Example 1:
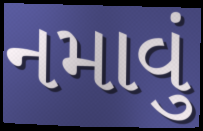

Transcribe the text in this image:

નમાવું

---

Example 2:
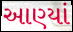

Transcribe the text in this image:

આણ્યાં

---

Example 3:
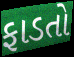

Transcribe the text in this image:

ફાડતો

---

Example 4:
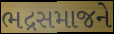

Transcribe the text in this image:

ભદ્રસમાજને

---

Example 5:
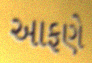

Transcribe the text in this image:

આફણે